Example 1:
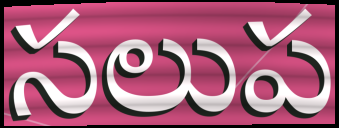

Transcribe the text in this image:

సలుప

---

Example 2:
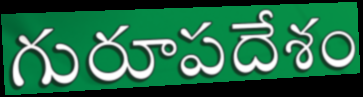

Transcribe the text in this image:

గురూపదేశం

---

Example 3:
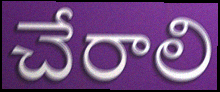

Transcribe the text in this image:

చేరాలి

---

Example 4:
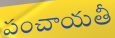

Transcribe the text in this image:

పంచాయతీ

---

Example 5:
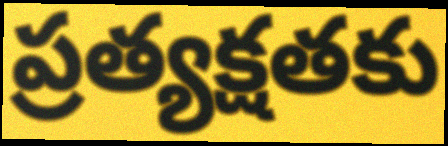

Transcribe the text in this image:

ప్రత్యక్షతకు